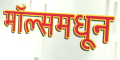
मॉल्समधून